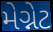
મેગ્નેટ